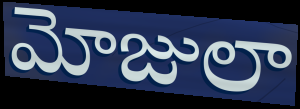
మోజులా